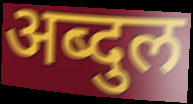
अब्दुल